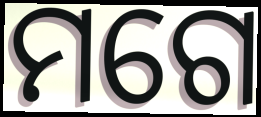
ମଗେ